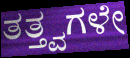
ತತ್ತ್ವಗಳೇ